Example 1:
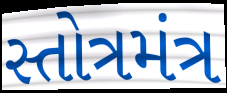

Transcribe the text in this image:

સ્તોત્રમંત્ર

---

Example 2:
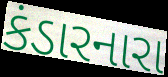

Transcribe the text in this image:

કંડારનારા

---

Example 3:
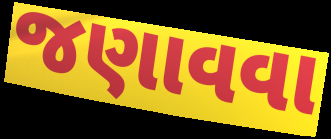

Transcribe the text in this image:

જણાવવા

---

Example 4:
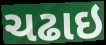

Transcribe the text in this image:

ચઢાઇ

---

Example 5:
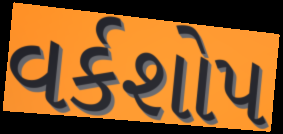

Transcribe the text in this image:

વર્કશોપ